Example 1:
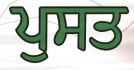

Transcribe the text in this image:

ਪੁਸਤ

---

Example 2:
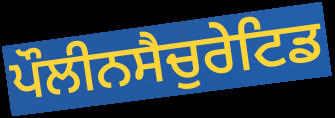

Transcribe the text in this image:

ਪੌਲੀਨਸੈਚੁਰੇਟਿਡ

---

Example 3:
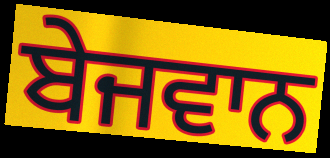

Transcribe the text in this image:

ਬੇਜਵਾਨ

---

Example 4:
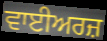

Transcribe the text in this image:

ਵਾਈਅਰਜ਼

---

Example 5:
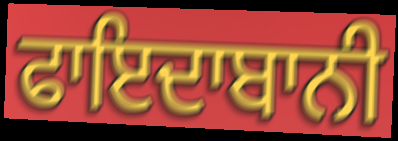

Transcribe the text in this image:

ਫਾਇਦਾਬਾਨੀ